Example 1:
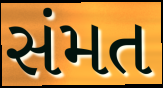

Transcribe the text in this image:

સંમત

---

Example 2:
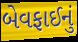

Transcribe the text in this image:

બેવફાઈનું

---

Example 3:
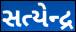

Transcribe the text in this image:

સત્યેન્દ્ર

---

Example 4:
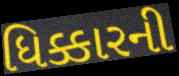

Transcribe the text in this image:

ધિક્કારની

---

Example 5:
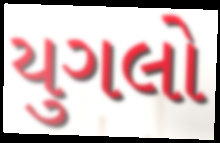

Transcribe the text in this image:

યુગલો